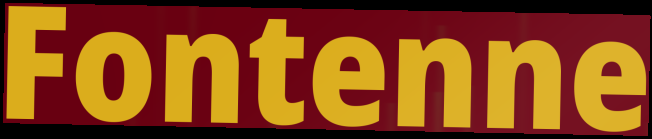
Fontenne